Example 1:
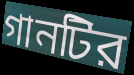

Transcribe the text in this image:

গানটির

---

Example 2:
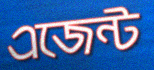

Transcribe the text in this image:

এজেন্ট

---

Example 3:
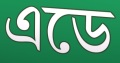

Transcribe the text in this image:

এডে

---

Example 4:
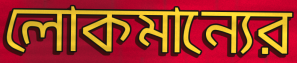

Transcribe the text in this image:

লোকমান্যের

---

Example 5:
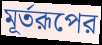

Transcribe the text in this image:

মূর্তরূপের